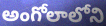
అంగోలాలోని